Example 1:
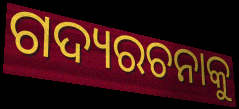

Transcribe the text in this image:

ଗଦ୍ୟରଚନାକୁ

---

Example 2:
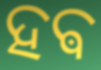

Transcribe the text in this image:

ହଵ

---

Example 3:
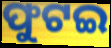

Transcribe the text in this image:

ଫୁଟଇ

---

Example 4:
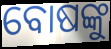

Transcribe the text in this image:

ବୋଷଙ୍କୁ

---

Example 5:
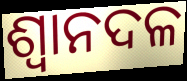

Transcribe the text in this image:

ଶ୍ୱାନଦଳ